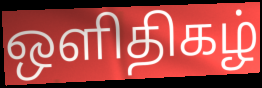
ஒளிதிகழ்